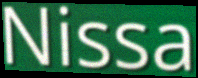
Nissa